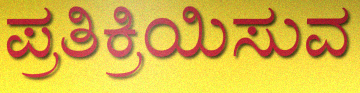
ಪ್ರತಿಕ್ರಿಯಿಸುವ